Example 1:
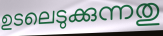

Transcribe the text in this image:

ഉടലെടുക്കുന്നതു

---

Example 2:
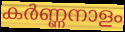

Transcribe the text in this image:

കർണ്ണനാളം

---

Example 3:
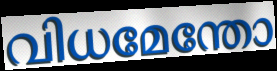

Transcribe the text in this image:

വിധമേന്തോ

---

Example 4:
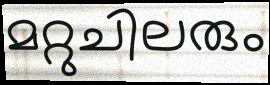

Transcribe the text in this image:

മറ്റുചിലരും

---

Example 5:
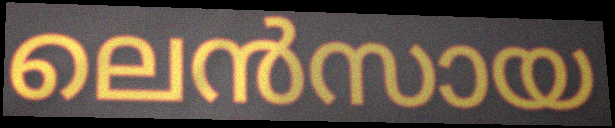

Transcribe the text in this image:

ലെൻസായ